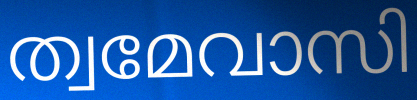
ത്വമേവാസി